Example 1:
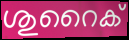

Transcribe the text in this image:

ശുറൈക്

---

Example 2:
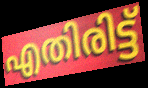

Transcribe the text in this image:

എതിരിട്ട്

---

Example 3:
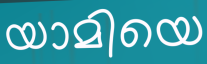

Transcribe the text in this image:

യാമിയെ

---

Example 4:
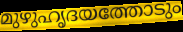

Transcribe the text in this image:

മുഴുഹൃദയത്തോടും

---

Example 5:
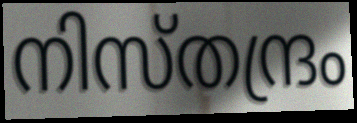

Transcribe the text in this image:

നിസ്തന്ദ്രം